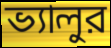
ভ্যালুর